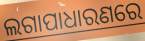
ଲଗାପାଧାରଣରେ